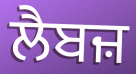
ਲੈਬਜ਼